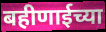
बहीणाईच्या